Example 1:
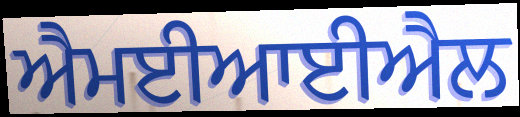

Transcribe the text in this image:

ਐਮਈਆਈਐਲ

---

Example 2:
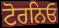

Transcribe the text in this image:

ਟੋਰਨਿਓ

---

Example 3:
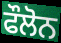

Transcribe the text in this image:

ਫੌਲੋਨ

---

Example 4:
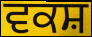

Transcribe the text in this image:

ਵਕਸ਼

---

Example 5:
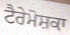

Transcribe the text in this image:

ਟੈਰੇਮੋਸ਼ਕਾ